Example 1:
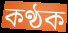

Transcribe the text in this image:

কণ্ঠক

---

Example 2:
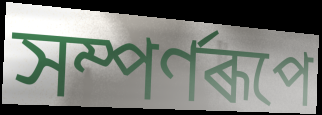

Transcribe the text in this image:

সম্পৰ্ণৰূপে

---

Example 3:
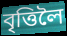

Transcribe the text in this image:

বৃত্তিলৈ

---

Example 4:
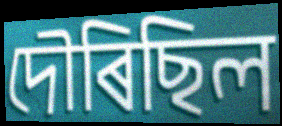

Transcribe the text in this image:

দৌৰিছিল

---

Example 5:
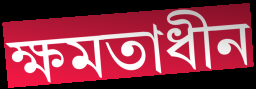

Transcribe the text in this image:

ক্ষমতাধীন